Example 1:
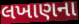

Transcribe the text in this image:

લખાણના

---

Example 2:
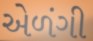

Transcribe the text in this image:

એળંગી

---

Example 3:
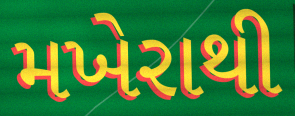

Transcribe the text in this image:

મખેરાથી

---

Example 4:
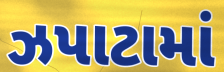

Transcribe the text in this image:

ઝપાટામાં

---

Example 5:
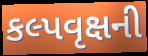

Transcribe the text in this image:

કલ્પવૃક્ષની